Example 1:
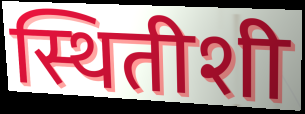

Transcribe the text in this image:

स्थितीशी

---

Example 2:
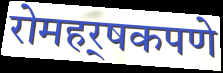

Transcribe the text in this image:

रोमहर्षकपणे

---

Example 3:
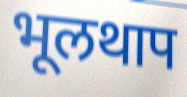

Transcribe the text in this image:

भूलथाप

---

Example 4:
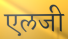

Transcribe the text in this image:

एलजी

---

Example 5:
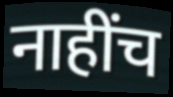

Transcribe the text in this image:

नाहींच